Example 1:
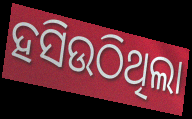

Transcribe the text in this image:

ହସିଉଠିଥିଲା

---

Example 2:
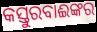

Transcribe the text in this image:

କସ୍ତୁରବାଈଙ୍କର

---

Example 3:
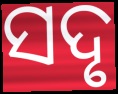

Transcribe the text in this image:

ସଦୃ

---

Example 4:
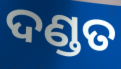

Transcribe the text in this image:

ଦଣ୍ଡତ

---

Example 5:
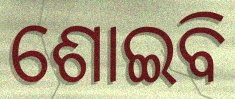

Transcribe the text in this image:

ଶୋଇବି